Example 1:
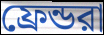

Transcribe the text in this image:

ফ্রেন্ডরা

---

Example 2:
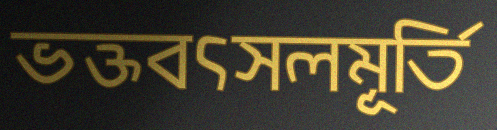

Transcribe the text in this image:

ভক্তবৎসলমূর্তি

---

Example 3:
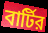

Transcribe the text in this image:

বার্টির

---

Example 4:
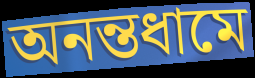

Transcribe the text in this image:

অনন্তধামে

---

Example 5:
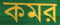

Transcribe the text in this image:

কমর